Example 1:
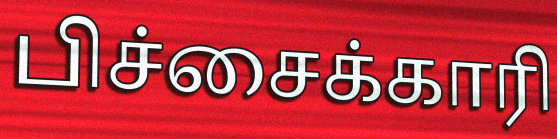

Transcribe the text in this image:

பிச்சைக்காரி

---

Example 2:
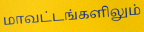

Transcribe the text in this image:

மாவட்டங்களிலும்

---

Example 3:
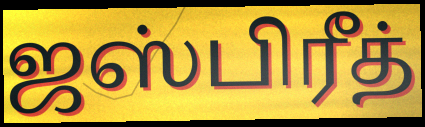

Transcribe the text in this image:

ஜஸ்பிரீத்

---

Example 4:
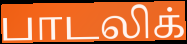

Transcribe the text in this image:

பாடலிக்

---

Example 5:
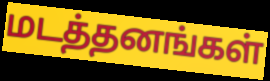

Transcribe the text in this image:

மடத்தனங்கள்